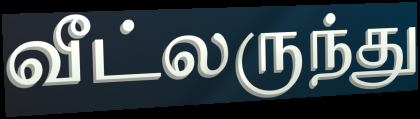
வீட்லருந்து